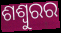
ଶଶ୍ୱୁରର